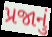
પ્રજાનું